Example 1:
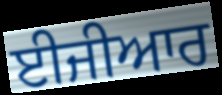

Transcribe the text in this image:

ਈਜੀਆਰ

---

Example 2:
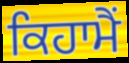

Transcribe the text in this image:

ਕਿਹਾਮੈਂ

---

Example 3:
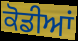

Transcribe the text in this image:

ਕੋਡੀਆਂ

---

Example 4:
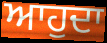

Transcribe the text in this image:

ਆਹੁਦਾ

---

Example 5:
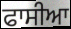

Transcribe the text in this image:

ਫਾਸੀਆ